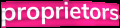
proprietors